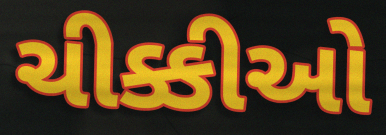
ચીક્કીઓ